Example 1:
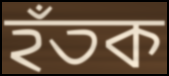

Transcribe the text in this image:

হঁতক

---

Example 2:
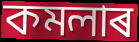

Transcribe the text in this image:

কমলাৰ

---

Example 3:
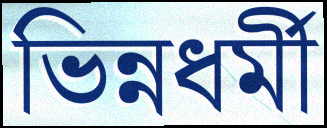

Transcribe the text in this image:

ভিন্নধৰ্মী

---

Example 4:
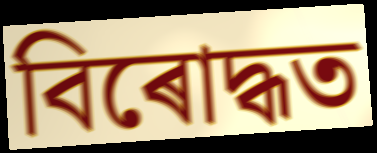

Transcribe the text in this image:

বিৰোদ্ধত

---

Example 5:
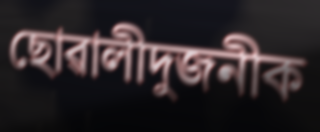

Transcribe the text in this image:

ছোৱালীদুজনীক